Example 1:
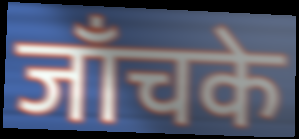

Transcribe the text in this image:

जाँचके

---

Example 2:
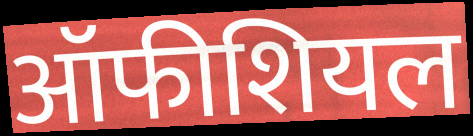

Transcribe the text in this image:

ऑफीशियल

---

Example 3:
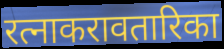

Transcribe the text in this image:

रत्नाकरावतारिका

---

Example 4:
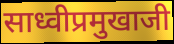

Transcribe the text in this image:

साध्वीप्रमुखाजी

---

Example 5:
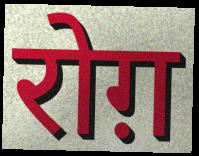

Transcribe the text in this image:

रोग़